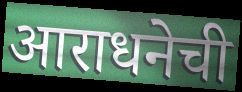
आराधनेची